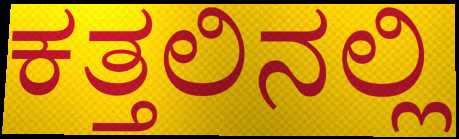
ಕತ್ತಲಿನಲ್ಲಿ